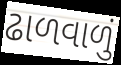
ઢાળવાળું